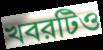
খবরটিও